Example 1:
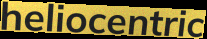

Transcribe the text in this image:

heliocentric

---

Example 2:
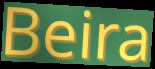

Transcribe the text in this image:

Beira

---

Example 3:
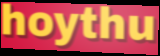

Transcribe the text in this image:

hoythu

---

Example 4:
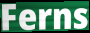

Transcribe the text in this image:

Ferns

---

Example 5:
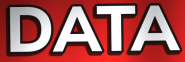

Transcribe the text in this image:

DATA